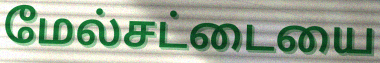
மேல்சட்டையை